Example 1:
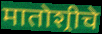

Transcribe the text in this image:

मातोश्रीचे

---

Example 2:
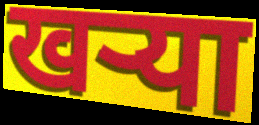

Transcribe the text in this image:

खऱ्या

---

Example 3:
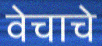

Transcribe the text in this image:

वेचाचे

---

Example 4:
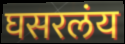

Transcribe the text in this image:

घसरलंय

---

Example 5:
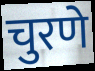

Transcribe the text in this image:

चुरणे